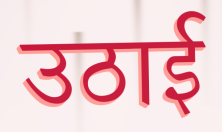
उठाई